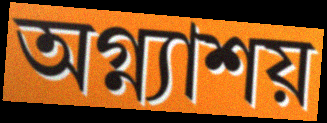
অগ্ন্যাশয়